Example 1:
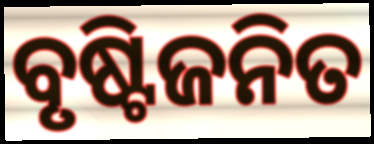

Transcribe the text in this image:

ବୃଷ୍ଟିଜନିତ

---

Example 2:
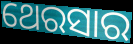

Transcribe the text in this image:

ଥେରସାର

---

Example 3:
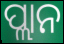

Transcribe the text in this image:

ପ୍ଲାନ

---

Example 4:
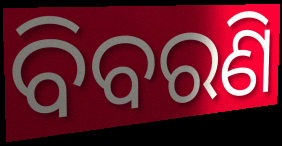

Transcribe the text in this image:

ବିବରଣି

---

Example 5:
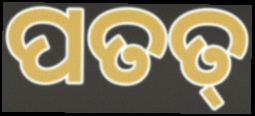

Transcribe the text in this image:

ପତତ୍